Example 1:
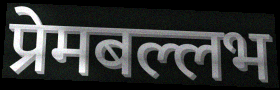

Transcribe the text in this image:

प्रेमबल्लभ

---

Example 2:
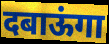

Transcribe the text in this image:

दबाऊंगा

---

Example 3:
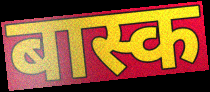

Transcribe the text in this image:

बास्क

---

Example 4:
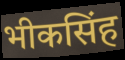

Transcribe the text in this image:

भीकसिंह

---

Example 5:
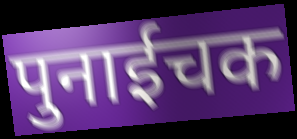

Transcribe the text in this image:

पुनाईचक